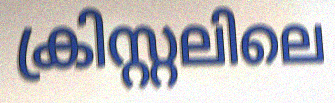
ക്രിസ്റ്റലിലെ